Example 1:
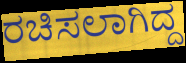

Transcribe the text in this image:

ರಚಿಸಲಾಗಿದ್ದ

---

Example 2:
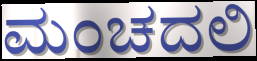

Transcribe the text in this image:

ಮಂಚದಲಿ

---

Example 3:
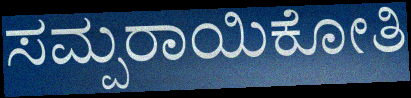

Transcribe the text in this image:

ಸಮ್ಪರಾಯಿಕೋತಿ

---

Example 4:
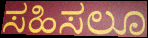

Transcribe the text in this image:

ಸಹಿಸಲೂ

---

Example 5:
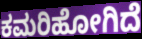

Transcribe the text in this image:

ಕಮರಿಹೋಗಿದೆ